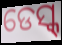
ଡେସ୍କ୍